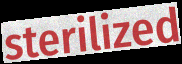
sterilized